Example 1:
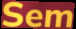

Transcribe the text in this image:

Sem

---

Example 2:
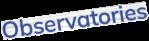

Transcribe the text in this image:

Observatories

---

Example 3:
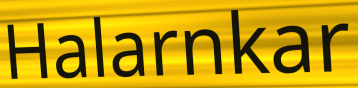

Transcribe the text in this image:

Halarnkar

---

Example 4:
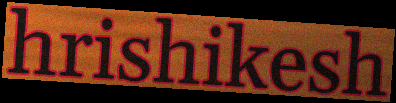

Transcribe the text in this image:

hrishikesh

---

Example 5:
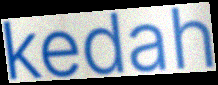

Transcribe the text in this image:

kedah